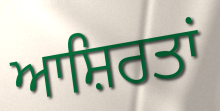
ਆਸ਼ਿਰਤਾਂ